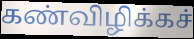
கண்விழிக்கச்